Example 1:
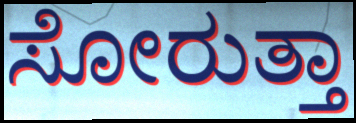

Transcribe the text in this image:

ಸೋರುತ್ತಾ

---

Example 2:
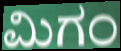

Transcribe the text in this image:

ಮಿಗಂ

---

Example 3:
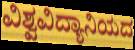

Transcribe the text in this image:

ವಿಶ್ವವಿದ್ಯಾನಿಯದ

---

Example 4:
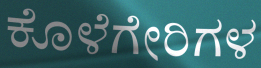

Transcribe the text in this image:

ಕೊಳೆಗೇರಿಗಳ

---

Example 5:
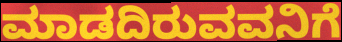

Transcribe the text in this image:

ಮಾಡದಿರುವವನಿಗೆ